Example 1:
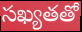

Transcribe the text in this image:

సఖ్యతతో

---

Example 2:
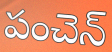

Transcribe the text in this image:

పంచెన్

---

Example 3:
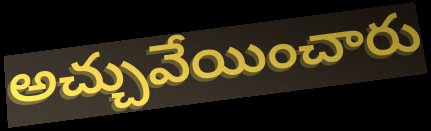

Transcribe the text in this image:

అచ్చువేయించారు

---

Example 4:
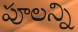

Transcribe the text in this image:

పూలన్ని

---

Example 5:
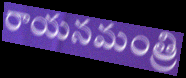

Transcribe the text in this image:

రాయనమంత్రి